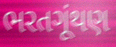
ભરતગૂંથણ